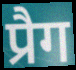
प्रैग